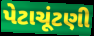
પેટાચૂંટણી